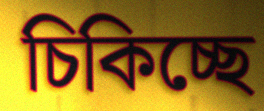
চিকিচ্ছে